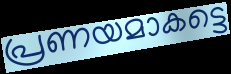
പ്രണയമാകട്ടെ